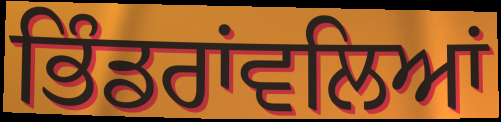
ਭਿੰਡਰਾਂਵਲਿਆਂ